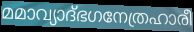
മമാവ്യാദ്ഭഗനേത്രഹാരീ